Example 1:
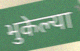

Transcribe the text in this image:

भुकेल्या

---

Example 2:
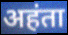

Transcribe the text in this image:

अहंता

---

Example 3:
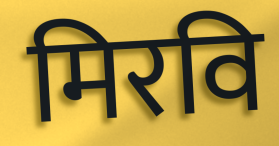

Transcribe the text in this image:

मिरवि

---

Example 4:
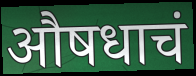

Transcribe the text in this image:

औषधाचं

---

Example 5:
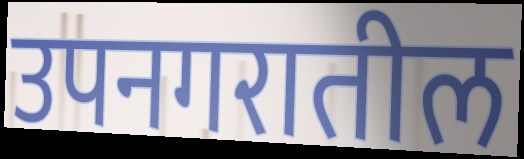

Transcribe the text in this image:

उपनगरातील